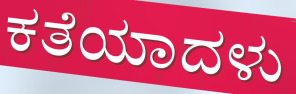
ಕತೆಯಾದಳು